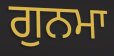
ਗੁਨਮਾ